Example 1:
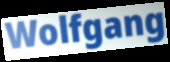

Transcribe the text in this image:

Wolfgang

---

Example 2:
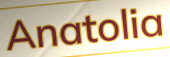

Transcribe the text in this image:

Anatolia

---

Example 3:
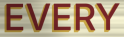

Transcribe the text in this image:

EVERY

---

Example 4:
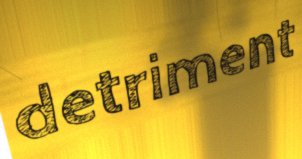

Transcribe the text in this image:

detriment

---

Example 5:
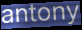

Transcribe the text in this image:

antony